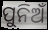
ପୁନିଅଁ